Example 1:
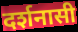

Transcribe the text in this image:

दर्शनासी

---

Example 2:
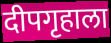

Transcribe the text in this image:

दीपगृहाला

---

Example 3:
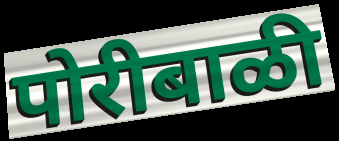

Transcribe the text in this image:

पोरीबाळी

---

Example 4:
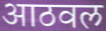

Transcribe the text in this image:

आठवल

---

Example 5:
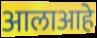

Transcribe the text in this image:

आलाआहे